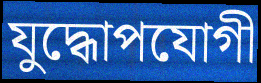
যুদ্ধোপযোগী